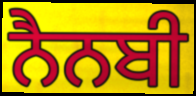
ਨੈਨਬੀ